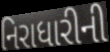
નિરાધારીની